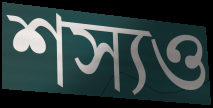
শস্যও